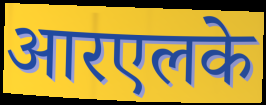
आरएलके